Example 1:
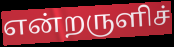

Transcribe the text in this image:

என்றருளிச்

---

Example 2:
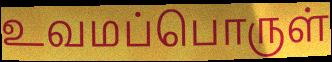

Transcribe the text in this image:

உவமப்பொருள்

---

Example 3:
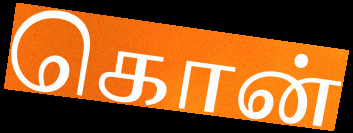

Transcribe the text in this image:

கொன்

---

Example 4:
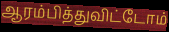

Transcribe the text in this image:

ஆரம்பித்துவிட்டோம்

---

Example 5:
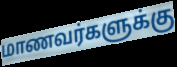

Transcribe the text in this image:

மாணவர்களுக்கு